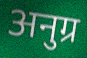
अनुग्र